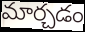
మార్చడం